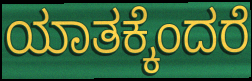
ಯಾತಕ್ಕೆಂದರೆ